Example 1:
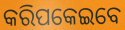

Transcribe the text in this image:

କରିପକେଇବେ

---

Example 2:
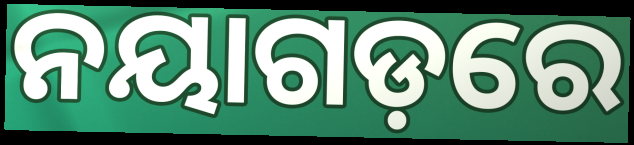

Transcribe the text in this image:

ନୟାଗଡ଼ରେ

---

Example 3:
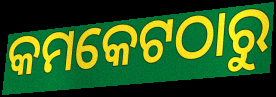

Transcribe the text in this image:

କମକେଟଠାରୁ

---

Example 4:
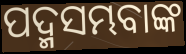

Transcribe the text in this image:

ପଦ୍ମସମ୍ଭବାଙ୍କ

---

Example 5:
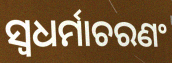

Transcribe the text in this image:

ସ୍ୱଧର୍ମାଚରଣଂ